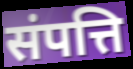
संपत्ति